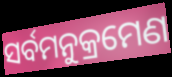
ସର୍ବମନୁକ୍ରମେଣ